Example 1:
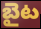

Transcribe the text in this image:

బైట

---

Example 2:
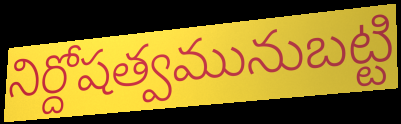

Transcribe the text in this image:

నిర్దోషత్వమునుబట్టి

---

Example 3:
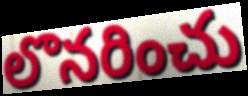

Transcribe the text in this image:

లొనరించు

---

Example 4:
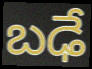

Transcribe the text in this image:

బఢే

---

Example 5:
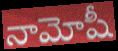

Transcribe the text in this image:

నామోషీ